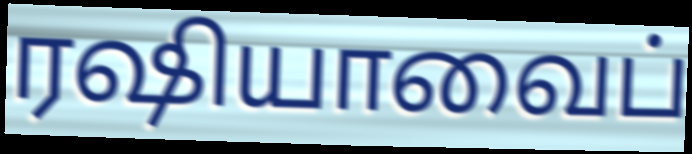
ரஷியாவைப்